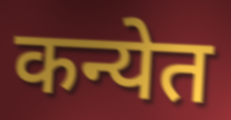
कन्येत